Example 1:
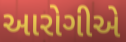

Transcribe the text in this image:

આરોગીએ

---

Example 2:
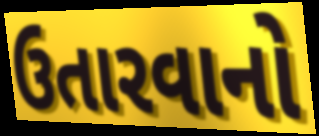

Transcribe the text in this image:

ઉતારવાનો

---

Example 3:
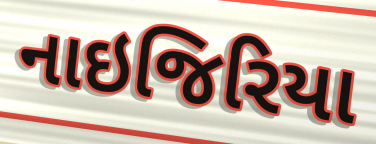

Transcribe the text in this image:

નાઇજિરિયા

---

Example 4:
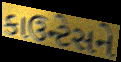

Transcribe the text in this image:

કાઉન્ટેસને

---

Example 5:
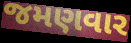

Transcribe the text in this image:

જમણવાર